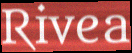
Rivea